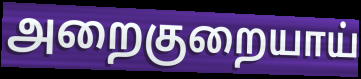
அறைகுறையாய்